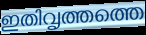
ഇതിവൃത്തത്തെ